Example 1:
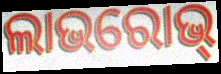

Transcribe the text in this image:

ଲାଭରୋଭ୍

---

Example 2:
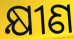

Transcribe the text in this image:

କ୍ଷୀଣ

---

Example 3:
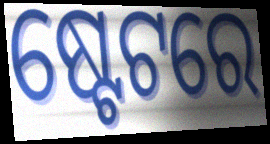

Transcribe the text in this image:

ଷ୍ଟେଟରେ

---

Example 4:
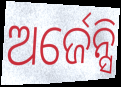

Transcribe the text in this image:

ଅର୍ଜେନ୍ସି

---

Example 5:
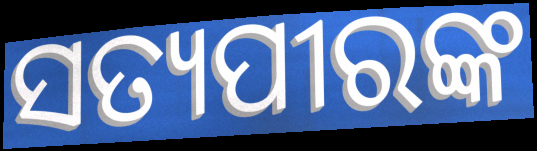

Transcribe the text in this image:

ସତ୍ୟପୀରଙ୍କ